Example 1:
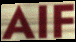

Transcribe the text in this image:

AIF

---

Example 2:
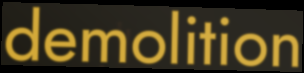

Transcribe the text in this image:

demolition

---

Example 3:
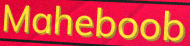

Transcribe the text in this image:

Maheboob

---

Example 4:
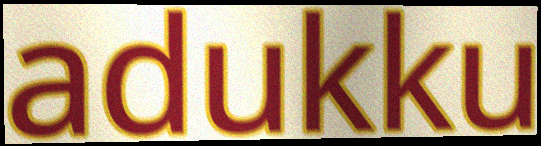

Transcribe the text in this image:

adukku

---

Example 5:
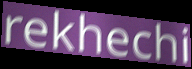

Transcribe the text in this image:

rekhechi